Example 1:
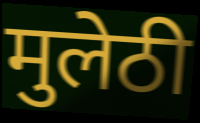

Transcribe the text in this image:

मुलेठी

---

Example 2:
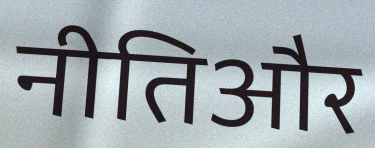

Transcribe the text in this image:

नीतिऔर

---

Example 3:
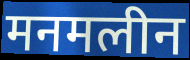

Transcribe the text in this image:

मनमलीन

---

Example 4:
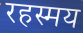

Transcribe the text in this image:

रहस्मय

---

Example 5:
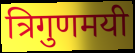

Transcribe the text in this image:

त्रिगुणमयी